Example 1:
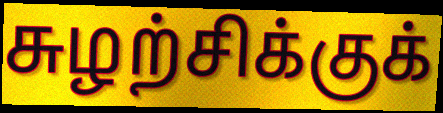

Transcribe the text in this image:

சுழற்சிக்குக்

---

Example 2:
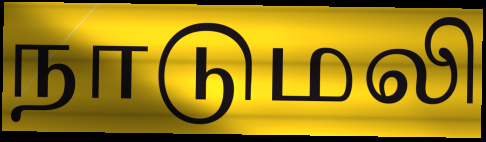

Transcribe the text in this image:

நாடுமலி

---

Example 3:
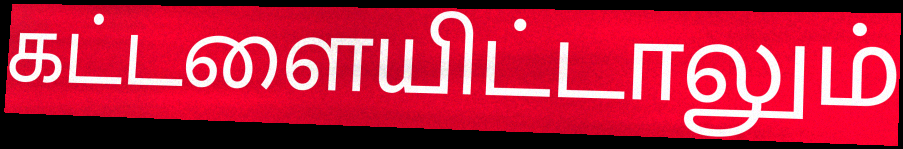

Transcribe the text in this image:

கட்டளையிட்டாலும்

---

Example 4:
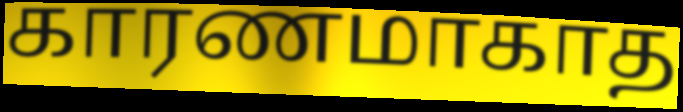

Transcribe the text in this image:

காரணமாகாத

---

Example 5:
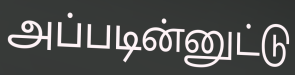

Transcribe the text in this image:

அப்படின்னுட்டு